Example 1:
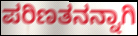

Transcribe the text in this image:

ಪರಿಣತನನ್ನಾಗಿ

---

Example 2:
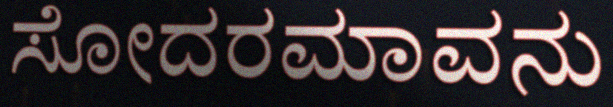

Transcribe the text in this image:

ಸೋದರಮಾವನು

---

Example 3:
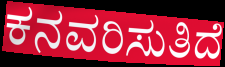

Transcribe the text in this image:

ಕನವರಿಸುತಿದೆ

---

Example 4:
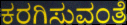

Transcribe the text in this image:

ಕರಗಿಸುವಂತೆ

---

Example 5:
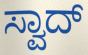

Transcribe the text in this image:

ಸ್ವಾದ್